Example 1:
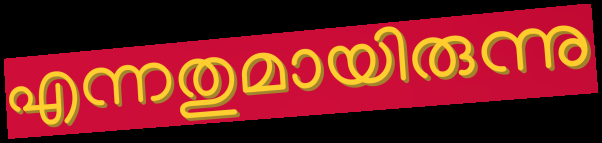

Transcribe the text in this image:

എന്നതുമായിരുന്നു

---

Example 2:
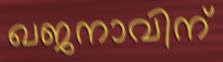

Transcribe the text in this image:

ഖജനാവിന്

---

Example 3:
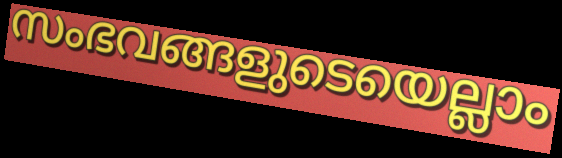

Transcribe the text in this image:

സംഭവങ്ങളുടെയെല്ലാം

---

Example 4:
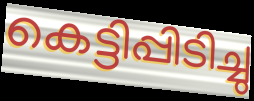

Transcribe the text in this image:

കെട്ടിപ്പിടിച്ചു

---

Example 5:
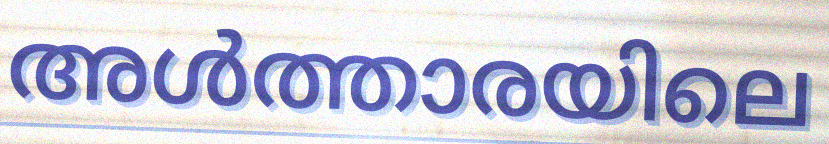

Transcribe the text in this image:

അൾത്താരയിലെ